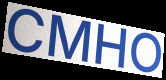
CMHO